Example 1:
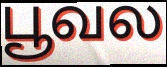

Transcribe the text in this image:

பூவல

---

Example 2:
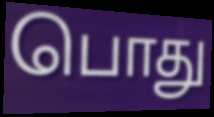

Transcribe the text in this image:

பொது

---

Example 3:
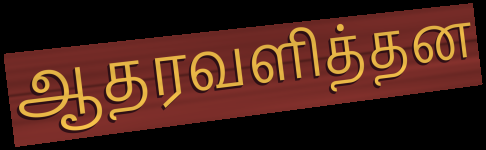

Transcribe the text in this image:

ஆதரவளித்தன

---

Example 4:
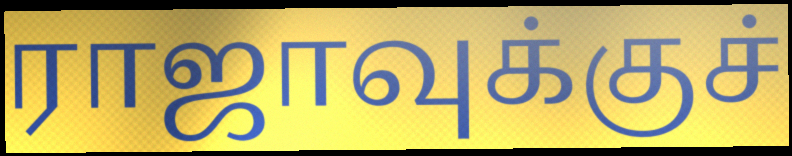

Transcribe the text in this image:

ராஜாவுக்குச்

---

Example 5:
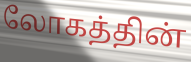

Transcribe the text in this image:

லோகத்தின்